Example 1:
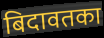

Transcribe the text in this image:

बिदावतका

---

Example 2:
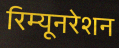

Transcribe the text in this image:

रिम्यूनरेशन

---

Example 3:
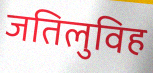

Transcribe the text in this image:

जतिलुविह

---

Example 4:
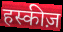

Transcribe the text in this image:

हस्कीज़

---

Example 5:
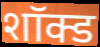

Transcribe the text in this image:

शॉक्ड